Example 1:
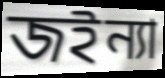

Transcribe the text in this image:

জইন্যা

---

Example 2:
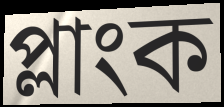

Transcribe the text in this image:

প্লাংক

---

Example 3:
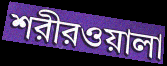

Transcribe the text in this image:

শরীরওয়ালা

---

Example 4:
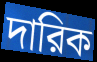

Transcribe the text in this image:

দারিক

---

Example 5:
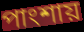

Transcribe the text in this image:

পাংশায়